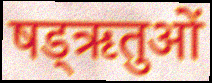
षड्ऋतुओं